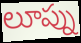
లూప్ను